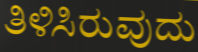
ತಿಳಿಸಿರುವುದು